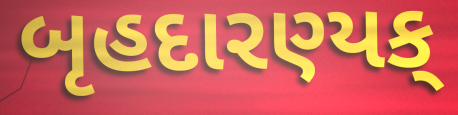
બૃહદારણ્યક્